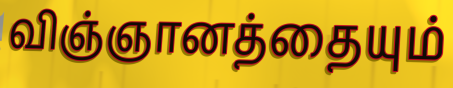
விஞ்ஞானத்தையும்